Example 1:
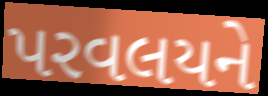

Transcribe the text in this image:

પરવલયને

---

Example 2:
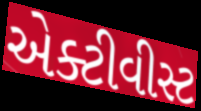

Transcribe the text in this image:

એક્ટીવીસ્ટ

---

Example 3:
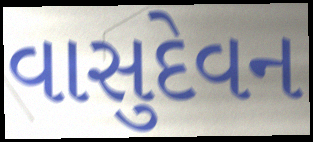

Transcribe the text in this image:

વાસુદેવન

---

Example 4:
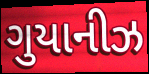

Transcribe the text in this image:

ગુયાનીઝ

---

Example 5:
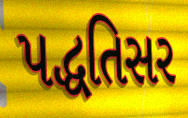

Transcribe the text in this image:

પદ્ધતિસર